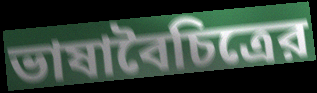
ভাষাবৈচিত্রের